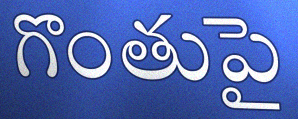
గొంతుపై